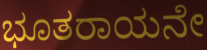
ಭೂತರಾಯನೇ